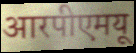
आरपीएमयू